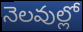
నెలవుల్లో